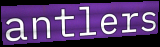
antlers